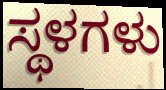
ಸ್ಥಳಗಳು